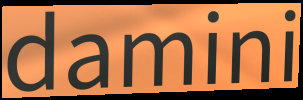
damini